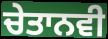
ਚੇਤਾਨਵੀ